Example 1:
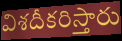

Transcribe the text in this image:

విశదీకరిస్తారు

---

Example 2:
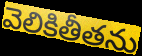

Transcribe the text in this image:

వెలికితీతను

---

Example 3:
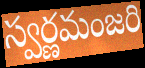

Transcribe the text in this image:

స్వర్ణమంజరి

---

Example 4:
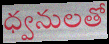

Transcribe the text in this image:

ధ్వనులతో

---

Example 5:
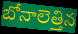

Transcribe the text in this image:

బోనాలెత్తిన